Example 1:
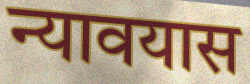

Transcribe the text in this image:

न्यावयास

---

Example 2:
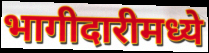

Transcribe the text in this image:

भागीदारीमध्ये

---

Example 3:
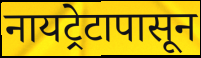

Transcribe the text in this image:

नायट्रेटापासून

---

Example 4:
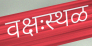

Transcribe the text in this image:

वक्षःस्थळ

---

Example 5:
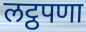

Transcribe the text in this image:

लट्ठपणा